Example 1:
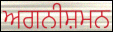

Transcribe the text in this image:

ਅਗਨੀਸ਼ਮਨ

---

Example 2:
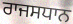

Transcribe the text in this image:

ਰਾਜਸਧਾਨ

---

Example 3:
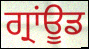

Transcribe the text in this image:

ਗ੍ਰਾਂਊਡ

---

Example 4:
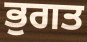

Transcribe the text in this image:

ਭੁਗਤ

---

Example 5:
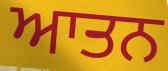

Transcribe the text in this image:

ਆਤਨ